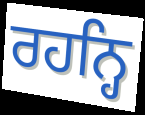
ਰਹਨ੍ਹਿ